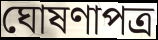
ঘোষণাপত্র